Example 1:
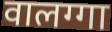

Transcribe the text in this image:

वालग्गा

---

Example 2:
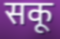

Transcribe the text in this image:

सकू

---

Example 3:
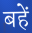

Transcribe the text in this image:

बहें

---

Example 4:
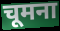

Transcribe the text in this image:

चूमना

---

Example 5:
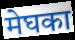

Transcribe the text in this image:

मेघका